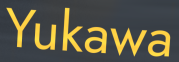
Yukawa